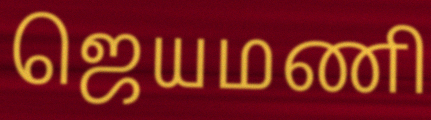
ஜெயமணி